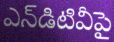
ఎన్‌డిటివీపై